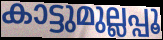
കാട്ടുമുല്ലപ്പൂ